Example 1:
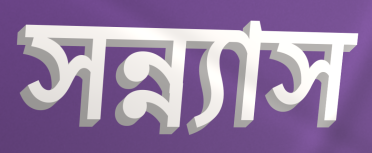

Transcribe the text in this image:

সন্ন্যাস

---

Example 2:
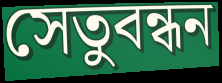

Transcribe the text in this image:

সেতুবন্ধন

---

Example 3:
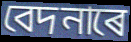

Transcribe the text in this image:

বেদনাৰে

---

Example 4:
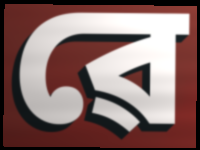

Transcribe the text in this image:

ৱে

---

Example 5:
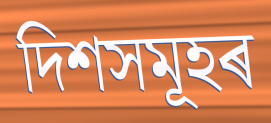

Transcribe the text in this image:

দিশসমূহৰ